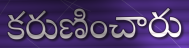
కరుణించారు